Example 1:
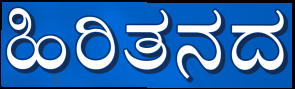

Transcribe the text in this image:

ಹಿರಿತನದ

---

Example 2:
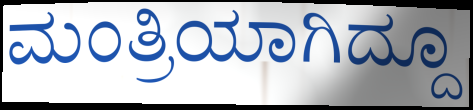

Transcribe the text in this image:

ಮಂತ್ರಿಯಾಗಿದ್ದೂ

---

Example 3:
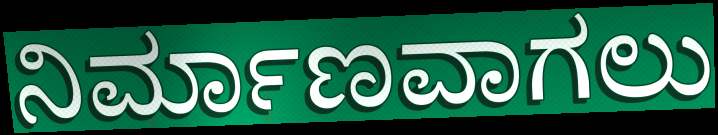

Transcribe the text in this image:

ನಿರ್ಮಾಣವಾಗಲು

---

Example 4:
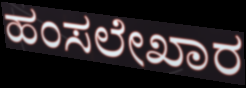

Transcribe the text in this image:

ಹಂಸಲೇಖಾರ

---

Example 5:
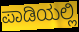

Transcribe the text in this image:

ಪಾಡಿಯಲ್ಲಿ